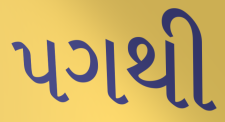
પગથી